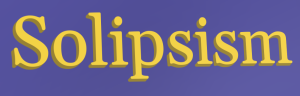
Solipsism